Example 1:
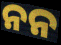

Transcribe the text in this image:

ନନ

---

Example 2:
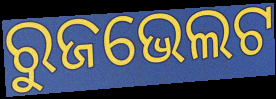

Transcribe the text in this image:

ରୁଜଭେଲଟ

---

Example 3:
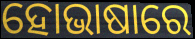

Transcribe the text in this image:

ହୋଭାଷାରେ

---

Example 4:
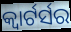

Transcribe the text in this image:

କ୍ବାର୍ଟର୍ସର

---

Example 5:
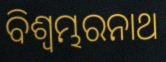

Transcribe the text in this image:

ବିଶ୍ୱମ୍ଭରନାଥ